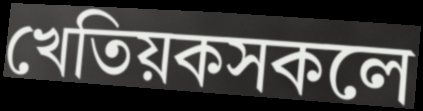
খেতিয়কসকলে